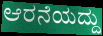
ಆರನೆಯದ್ದು